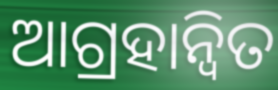
ଆଗ୍ରହାନ୍ୱିତ